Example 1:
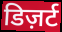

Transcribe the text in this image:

डिज़र्ट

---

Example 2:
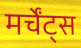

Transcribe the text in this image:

मर्चेंट्स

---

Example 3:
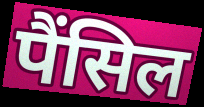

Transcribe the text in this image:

पैंसिल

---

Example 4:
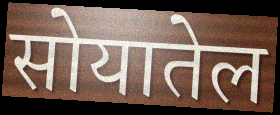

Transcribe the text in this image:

सोयातेल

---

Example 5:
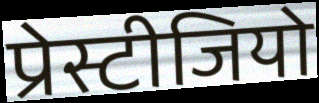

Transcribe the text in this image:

प्रेस्टीजियो